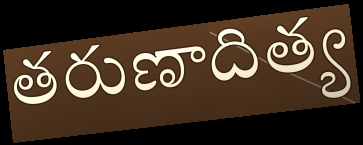
తరుణాదిత్య